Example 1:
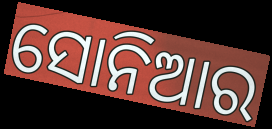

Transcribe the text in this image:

ସୋନିଆର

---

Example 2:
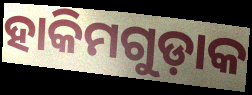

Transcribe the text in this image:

ହାକିମଗୁଡ଼ାକ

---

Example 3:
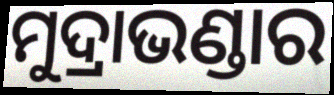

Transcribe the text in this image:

ମୁଦ୍ରାଭଣ୍ଡାର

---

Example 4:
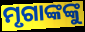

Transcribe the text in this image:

ମୃଗାଙ୍କଙ୍କୁ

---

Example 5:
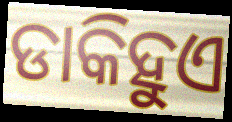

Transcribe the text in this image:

ଡାକିହୁଏ